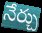
నేర్చు